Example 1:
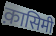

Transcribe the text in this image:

क़ासिमी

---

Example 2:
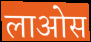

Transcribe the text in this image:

लाओस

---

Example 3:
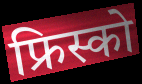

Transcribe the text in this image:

फ्रिस्को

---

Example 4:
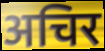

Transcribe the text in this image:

अचिर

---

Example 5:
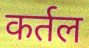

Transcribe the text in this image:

कर्तल